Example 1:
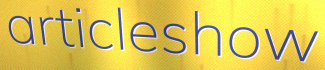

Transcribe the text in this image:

articleshow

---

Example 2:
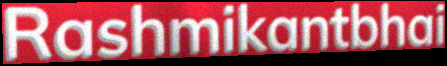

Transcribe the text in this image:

Rashmikantbhai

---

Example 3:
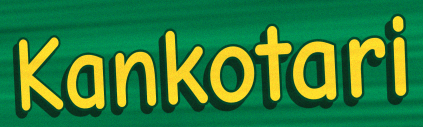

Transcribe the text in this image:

Kankotari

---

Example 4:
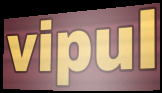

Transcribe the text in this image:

vipul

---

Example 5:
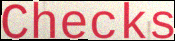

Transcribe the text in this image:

Checks